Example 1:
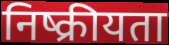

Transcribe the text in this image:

निष्क्रीयता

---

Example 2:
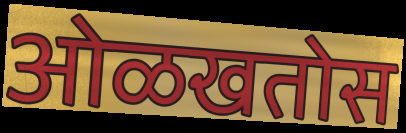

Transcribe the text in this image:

ओळखतोस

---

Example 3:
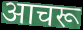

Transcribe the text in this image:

आचरू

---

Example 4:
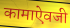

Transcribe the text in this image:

कामाऐवजी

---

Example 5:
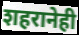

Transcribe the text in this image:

शहरानेही